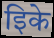
इिके